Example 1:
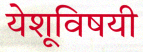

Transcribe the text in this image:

येशूविषयी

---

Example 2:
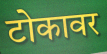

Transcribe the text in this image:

टोकावर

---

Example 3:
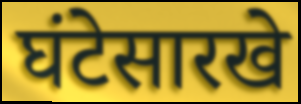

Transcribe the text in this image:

घंटेसारखे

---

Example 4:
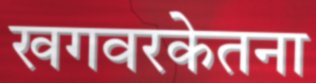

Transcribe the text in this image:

खगवरकेतना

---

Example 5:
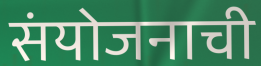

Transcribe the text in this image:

संयोजनाची